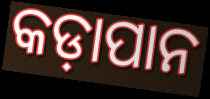
କଡ଼ାପାନ